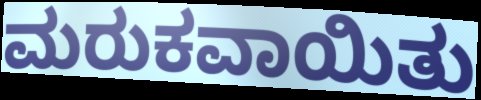
ಮರುಕವಾಯಿತು